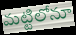
మట్టిలోనూ